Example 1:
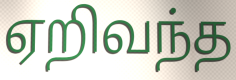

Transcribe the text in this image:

ஏறிவந்த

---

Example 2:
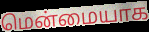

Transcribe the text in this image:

மென்மையாக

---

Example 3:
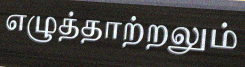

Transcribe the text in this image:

எழுத்தாற்றலும்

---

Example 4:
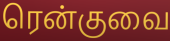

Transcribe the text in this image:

ரென்குவை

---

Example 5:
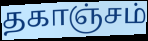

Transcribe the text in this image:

தகாஞ்சம்